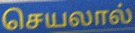
செயலால்